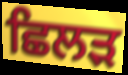
ਛਿਲੜ